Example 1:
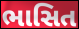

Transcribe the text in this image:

ભાસિત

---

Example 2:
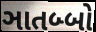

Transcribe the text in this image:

ઞાતબ્બો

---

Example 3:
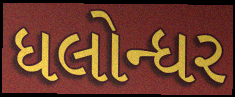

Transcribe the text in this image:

ધલોન્ધર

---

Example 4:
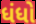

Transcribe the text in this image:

ધંધો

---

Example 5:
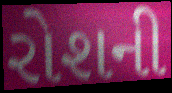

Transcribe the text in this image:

રોશની